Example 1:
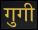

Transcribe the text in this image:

गुगी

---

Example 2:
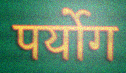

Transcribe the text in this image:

पर्योग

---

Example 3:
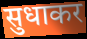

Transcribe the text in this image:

सुधाकर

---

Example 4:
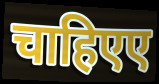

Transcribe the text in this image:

चाहिएए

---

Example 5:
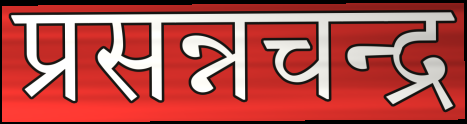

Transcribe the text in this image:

प्रसन्नचन्द्र